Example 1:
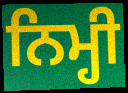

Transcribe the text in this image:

ਨਿਮ੍ਹੀ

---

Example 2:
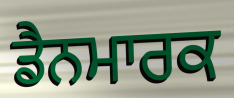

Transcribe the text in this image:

ਡੈਨਮਾਰਕ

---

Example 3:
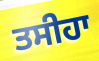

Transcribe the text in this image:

ਤਸੀਹਾ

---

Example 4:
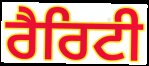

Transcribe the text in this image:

ਰੈਰਿਟੀ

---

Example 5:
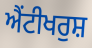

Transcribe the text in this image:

ਐਂਟੀਖਰੁਸ਼